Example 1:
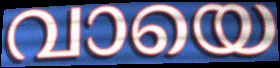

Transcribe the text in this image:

വായെ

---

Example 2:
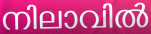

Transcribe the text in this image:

നിലാവിൽ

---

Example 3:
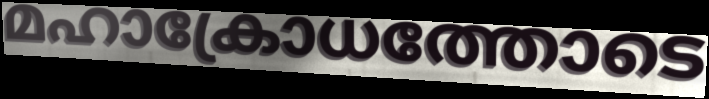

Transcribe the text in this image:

മഹാക്രോധത്തോടെ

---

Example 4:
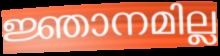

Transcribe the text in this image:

ജ്ഞാനമില്ല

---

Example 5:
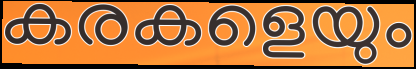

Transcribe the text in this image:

കരകളെയും